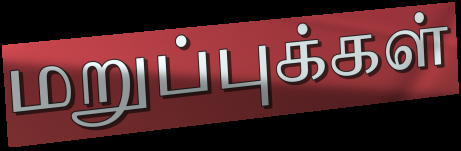
மறுப்புக்கள்